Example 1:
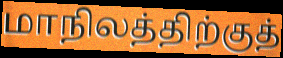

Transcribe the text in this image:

மாநிலத்திற்குத்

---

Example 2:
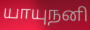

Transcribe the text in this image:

யாயுநனி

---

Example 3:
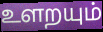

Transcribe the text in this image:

உளறயும்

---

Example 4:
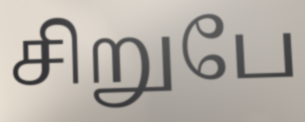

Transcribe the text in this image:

சிறுபே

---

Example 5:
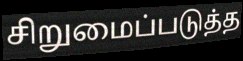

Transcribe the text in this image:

சிறுமைப்படுத்த